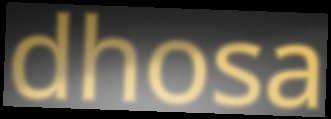
dhosa